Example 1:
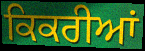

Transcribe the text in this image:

ਕਿਕਰੀਆਂ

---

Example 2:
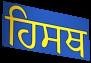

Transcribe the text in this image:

ਹਿਸਥ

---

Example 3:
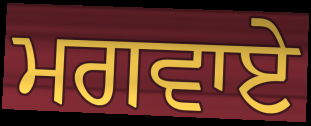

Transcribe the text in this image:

ਮਗਵਾਏ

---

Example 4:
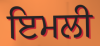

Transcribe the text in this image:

ਇਮਲੀ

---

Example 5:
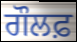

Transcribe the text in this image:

ਗੌਲਫ਼